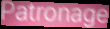
Patronage